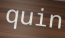
quin